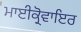
ਮਾਈਕ੍ਰੋਵਾਇਰ